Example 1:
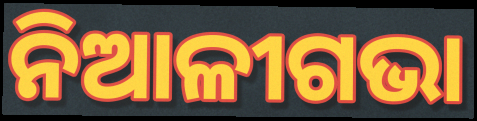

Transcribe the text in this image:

ନିଆଳୀଗଭା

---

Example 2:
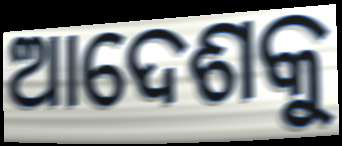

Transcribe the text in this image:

ଆଦେଶକୁ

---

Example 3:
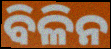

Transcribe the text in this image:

ବିଳିନ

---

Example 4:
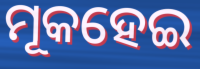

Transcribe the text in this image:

ମୂକହେଇ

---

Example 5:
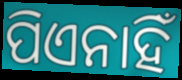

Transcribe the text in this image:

ପିଏନାହିଁ